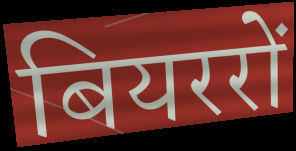
बियररों